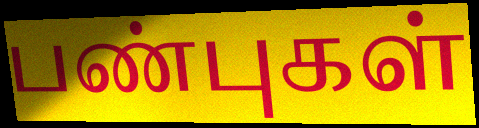
பண்புகள்